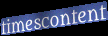
timescontent